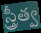
స్త్రీత్వ